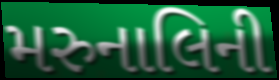
મરુનાલિની